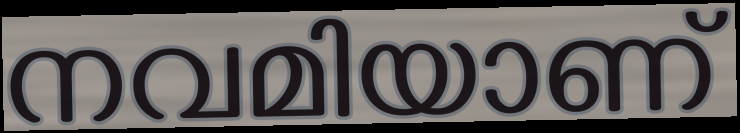
നവമിയാണ്